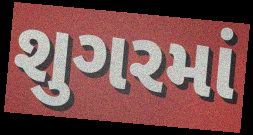
શુગરમાં